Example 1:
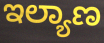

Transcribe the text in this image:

ಇಲ್ಯಾಣ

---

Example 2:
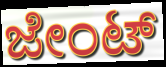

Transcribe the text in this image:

ಜೇಂಟ್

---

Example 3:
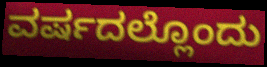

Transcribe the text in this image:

ವರ್ಷದಲ್ಲೊಂದು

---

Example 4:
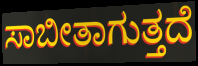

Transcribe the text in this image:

ಸಾಬೀತಾಗುತ್ತದೆ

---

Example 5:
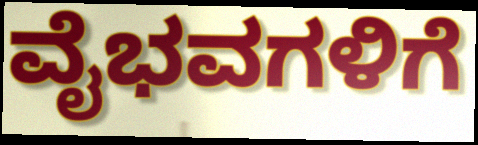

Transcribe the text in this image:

ವೈಭವಗಳಿಗೆ